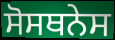
ਸੋਸਥਨੇਸ